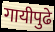
गायीपुढे